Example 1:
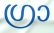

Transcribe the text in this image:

ഗ്രാ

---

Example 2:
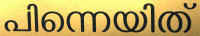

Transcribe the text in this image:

പിന്നെയിത്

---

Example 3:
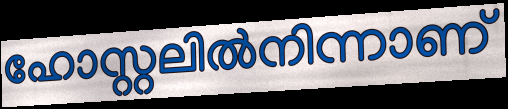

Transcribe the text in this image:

ഹോസ്റ്റലിൽനിന്നാണ്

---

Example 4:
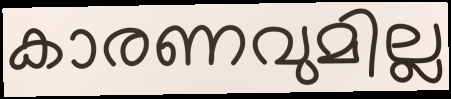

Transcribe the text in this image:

കാരണവുമില്ല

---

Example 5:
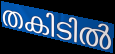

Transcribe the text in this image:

തകിടിൽ